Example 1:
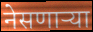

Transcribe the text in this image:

नेसणाऱ्या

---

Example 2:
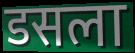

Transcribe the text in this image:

डसला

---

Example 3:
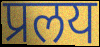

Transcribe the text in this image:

प्रलय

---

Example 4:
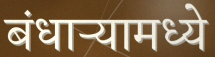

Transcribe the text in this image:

बंधाऱ्यामध्ये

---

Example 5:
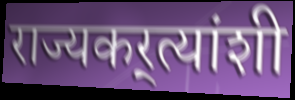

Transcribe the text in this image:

राज्यकर्त्यांशी